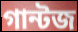
গান্টজ